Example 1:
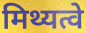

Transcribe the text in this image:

मिथ्यत्वे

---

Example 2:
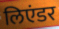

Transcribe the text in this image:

लिएंडर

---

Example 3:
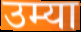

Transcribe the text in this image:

उम्या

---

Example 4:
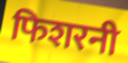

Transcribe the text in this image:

फिशरनी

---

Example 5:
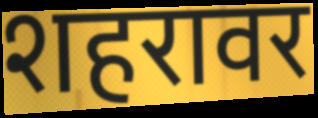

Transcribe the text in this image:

शहरावर